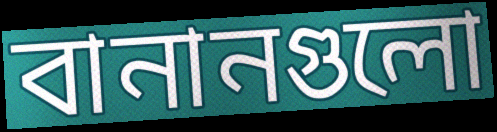
বানানগুলো